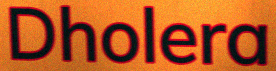
Dholera